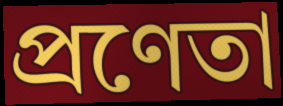
প্রণেতা